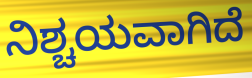
ನಿಶ್ಚಯವಾಗಿದೆ